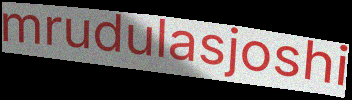
mrudulasjoshi